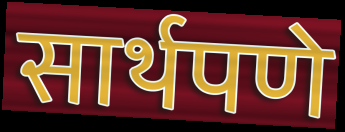
सार्थपणे